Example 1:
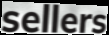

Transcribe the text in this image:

sellers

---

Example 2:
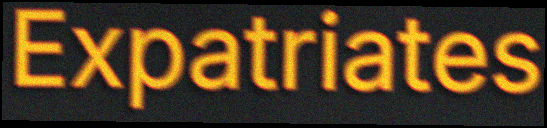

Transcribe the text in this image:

Expatriates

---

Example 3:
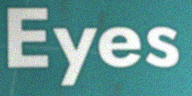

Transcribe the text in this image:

Eyes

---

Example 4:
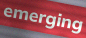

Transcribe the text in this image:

emerging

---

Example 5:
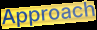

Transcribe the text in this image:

Approach